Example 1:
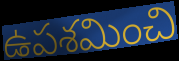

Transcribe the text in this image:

ఉపశమించి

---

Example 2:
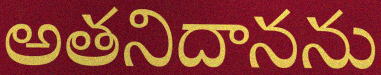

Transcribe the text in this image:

అతనిదానను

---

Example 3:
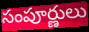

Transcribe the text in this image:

సంపూర్ణులు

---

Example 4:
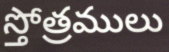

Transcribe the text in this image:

స్తోత్రములు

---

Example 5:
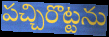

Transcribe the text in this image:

పచ్చిరొట్టను